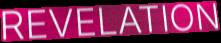
REVELATION